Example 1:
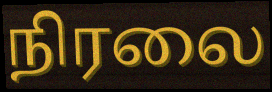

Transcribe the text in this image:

நிரலை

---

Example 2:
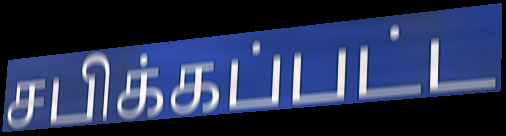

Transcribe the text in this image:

சபிக்கப்பட்ட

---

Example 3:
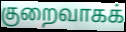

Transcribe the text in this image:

குறைவாகக்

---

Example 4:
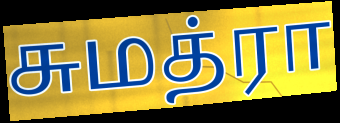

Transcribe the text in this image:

சுமத்ரா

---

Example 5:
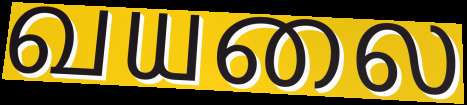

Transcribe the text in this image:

வயலை